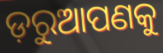
ଡ଼ରୁଆପଣକୁ